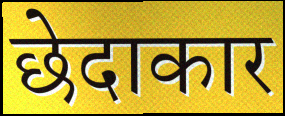
छेदाकार